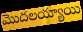
మొదలయ్యాయి